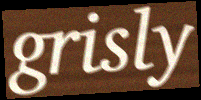
grisly